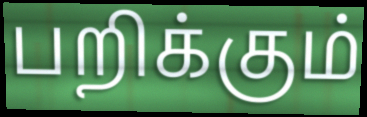
பறிக்கும்